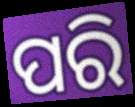
ପରି